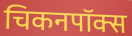
चिकनपॉक्स